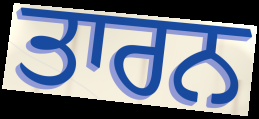
ਤਾਰਨ